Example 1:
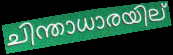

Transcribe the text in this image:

ചിന്താധാരയില്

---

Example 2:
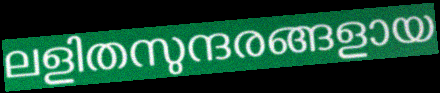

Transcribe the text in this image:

ലളിതസുന്ദരങ്ങളായ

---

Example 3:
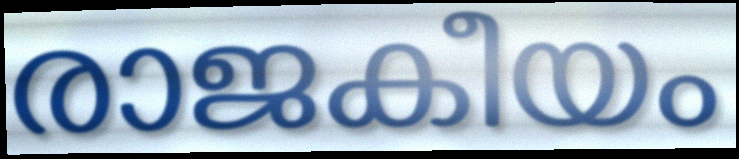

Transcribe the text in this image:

രാജകീയം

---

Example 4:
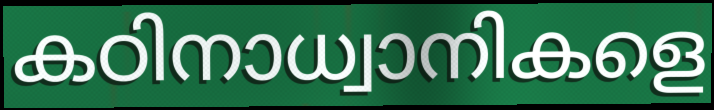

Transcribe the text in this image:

കഠിനാധ്വാനികളെ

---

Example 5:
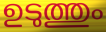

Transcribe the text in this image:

ഉടുത്തും